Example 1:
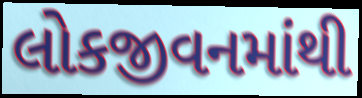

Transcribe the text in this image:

લોકજીવનમાંથી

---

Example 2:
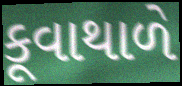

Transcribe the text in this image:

કૂવાથાળે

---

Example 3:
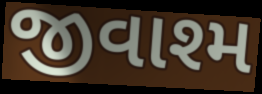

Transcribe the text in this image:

જીવાશ્મ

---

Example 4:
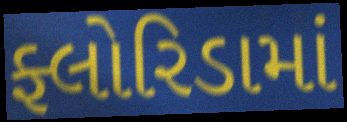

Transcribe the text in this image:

ફ્લોરિડામાં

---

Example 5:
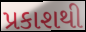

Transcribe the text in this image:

પ્રકાશથી